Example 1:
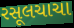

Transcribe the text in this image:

રસૂલચાચા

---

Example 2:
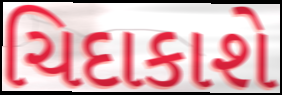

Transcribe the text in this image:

ચિદાકાશે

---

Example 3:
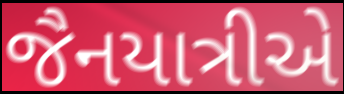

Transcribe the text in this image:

જૈનયાત્રીએ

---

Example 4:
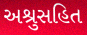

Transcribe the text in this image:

અશ્રુસહિત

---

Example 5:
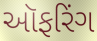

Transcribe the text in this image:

ઑફરિંગ